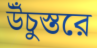
উঁচুস্তরে